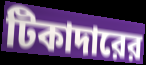
টিকাদারের